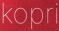
kopri